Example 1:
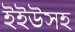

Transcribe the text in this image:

ইইউসহ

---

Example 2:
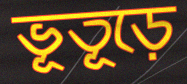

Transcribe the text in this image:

ভূতূড়ে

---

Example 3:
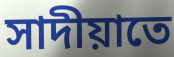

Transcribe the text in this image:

সাদীয়াতে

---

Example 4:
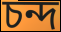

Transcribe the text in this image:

চন্দ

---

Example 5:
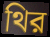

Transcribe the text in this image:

থির